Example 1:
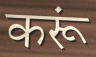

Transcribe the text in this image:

करूं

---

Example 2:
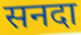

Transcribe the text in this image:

सनदा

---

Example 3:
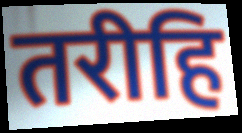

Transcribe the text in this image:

तरीहि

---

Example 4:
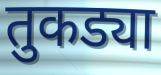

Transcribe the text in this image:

तुकड्या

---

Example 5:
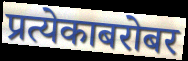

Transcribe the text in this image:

प्रत्येकाबरोबर